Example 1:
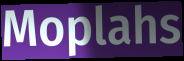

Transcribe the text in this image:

Moplahs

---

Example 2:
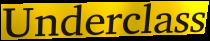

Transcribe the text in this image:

Underclass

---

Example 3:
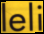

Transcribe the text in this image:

leli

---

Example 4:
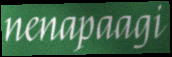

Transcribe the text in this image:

nenapaagi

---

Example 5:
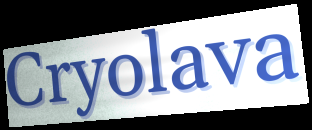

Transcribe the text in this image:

Cryolava